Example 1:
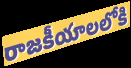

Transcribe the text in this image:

రాజకీయాలలోకి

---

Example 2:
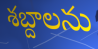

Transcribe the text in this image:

శబ్దాలను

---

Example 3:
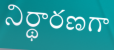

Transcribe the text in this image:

నిర్థారణగా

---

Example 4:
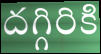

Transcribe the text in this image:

దగ్గిరికి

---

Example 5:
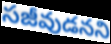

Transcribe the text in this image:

సజీవుడనని